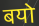
बयो